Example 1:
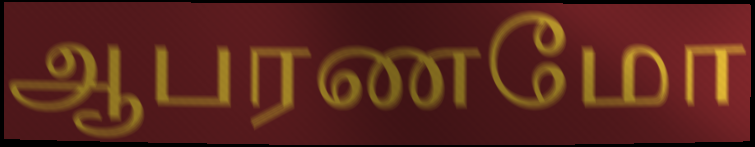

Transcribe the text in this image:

ஆபரணமோ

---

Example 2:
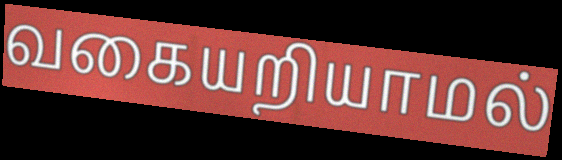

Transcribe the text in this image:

வகையறியாமல்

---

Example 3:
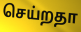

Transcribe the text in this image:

செய்றதா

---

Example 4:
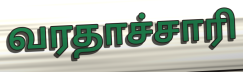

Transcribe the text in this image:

வரதாச்சாரி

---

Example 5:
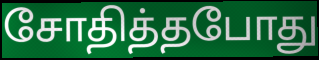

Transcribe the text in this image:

சோதித்தபோது